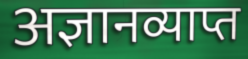
अज्ञानव्याप्त